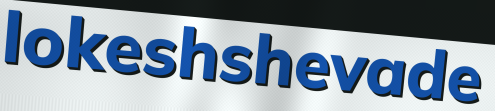
lokeshshevade